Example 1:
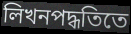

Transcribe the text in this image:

লিখনপদ্ধতিতে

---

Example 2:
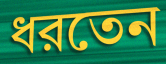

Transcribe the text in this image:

ধরতেন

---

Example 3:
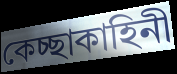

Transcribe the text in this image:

কেচ্ছাকাহিনী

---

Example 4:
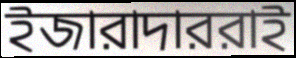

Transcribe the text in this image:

ইজারাদাররাই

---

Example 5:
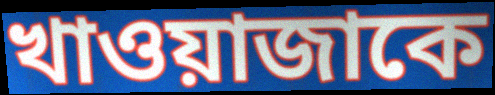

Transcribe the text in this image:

খাওয়াজাকে